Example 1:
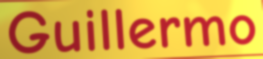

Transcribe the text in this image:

Guillermo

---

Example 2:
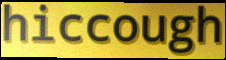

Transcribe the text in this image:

hiccough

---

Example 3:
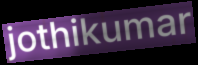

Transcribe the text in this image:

jothikumar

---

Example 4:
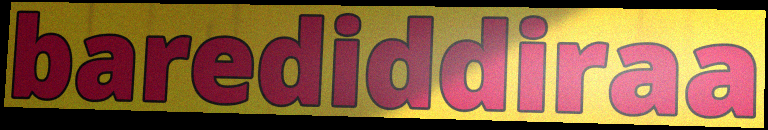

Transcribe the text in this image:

barediddiraa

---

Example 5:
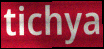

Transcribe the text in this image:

tichya